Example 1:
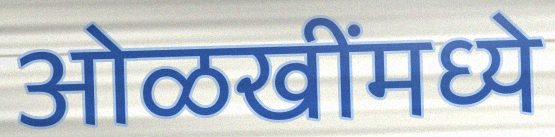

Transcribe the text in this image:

ओळखींमध्ये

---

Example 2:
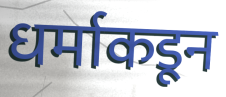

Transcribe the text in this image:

धर्माकडून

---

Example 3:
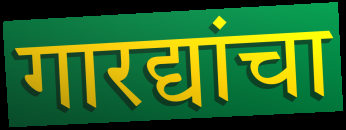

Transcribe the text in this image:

गारद्यांचा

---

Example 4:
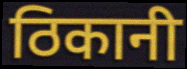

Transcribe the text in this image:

ठिकानी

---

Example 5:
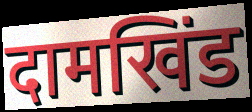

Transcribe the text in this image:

दामखिंड